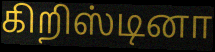
கிறிஸ்டினா